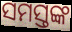
ସମସ୍ତଙ୍କ